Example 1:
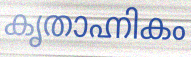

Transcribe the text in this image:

കൃതാഹ്നികം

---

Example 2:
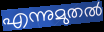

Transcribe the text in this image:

എന്നുമുതൽ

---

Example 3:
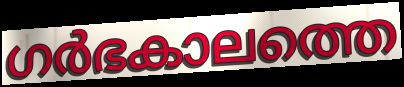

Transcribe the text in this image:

ഗർഭകാലത്തെ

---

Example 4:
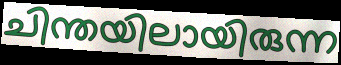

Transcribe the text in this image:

ചിന്തയിലായിരുന്ന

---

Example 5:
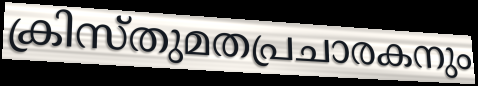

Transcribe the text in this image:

ക്രിസ്തുമതപ്രചാരകനും